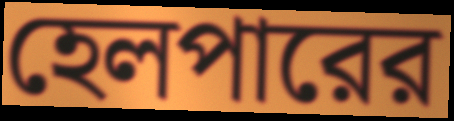
হেলপারের